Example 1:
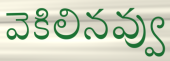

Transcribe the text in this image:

వెకిలినవ్వు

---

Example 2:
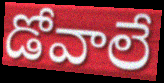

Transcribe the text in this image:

డోవాలే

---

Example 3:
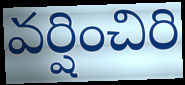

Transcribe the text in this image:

వర్షించిరి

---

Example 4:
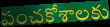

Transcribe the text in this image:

పంచకోశాలకు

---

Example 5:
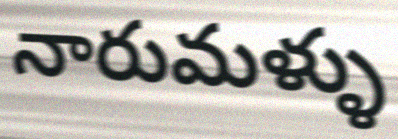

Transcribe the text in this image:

నారుమళ్ళు